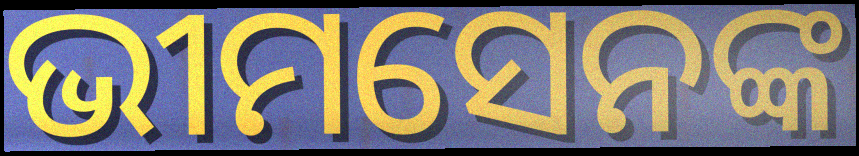
ଭୀମସେନଙ୍କ